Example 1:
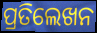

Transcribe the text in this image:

ପ୍ରତିଲେଖନ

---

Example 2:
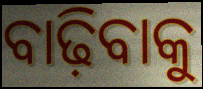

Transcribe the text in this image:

ବାଢ଼ିବାକୁ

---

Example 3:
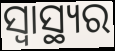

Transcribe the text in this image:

ସ୍ୱାସ୍ଥ୍ୟର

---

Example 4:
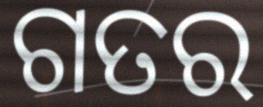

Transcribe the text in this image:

ଗତର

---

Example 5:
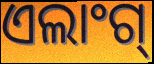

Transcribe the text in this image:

ଏଲାଂଗ୍